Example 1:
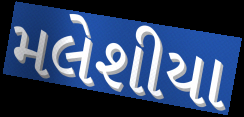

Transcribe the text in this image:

મલેશીયા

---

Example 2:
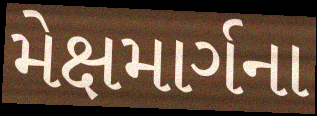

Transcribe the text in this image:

મેક્ષમાર્ગના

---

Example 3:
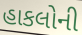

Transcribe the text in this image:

હાકલોની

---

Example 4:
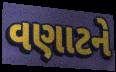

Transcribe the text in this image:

વણાટને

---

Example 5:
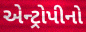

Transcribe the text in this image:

એન્ટ્રોપીનો